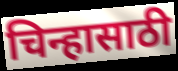
चिन्हासाठी